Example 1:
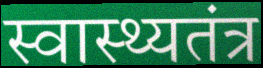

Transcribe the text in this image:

स्वास्थ्यतंत्र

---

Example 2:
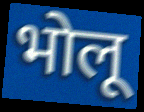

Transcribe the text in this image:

भोलू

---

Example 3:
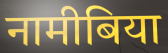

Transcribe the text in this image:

नामीबिया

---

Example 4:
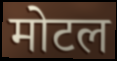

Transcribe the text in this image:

मोटल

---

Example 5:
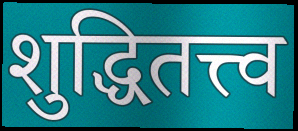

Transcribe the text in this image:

शुद्धितत्त्व